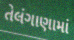
તેલંગાણામાં